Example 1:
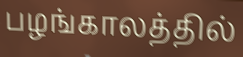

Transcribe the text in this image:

பழங்காலத்தில்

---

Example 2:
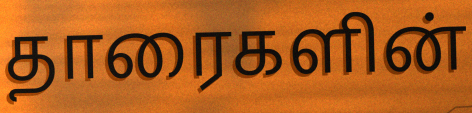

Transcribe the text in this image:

தாரைகளின்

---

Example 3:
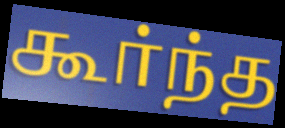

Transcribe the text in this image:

கூர்ந்த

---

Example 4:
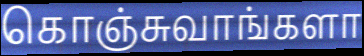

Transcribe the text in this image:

கொஞ்சுவாங்களா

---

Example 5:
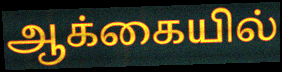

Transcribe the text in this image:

ஆக்கையில்